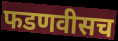
फडणवीसच